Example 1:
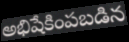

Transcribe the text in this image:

అభిషేకింపబడిన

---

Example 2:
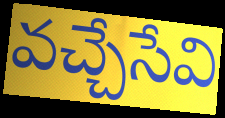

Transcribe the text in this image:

వచ్చేసేవి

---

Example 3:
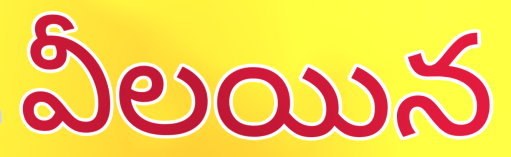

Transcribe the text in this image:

వీలయిన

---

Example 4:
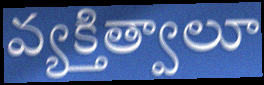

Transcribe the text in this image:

వ్యక్తిత్వాలూ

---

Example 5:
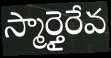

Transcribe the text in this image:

స్మార్తైరేవ